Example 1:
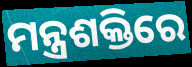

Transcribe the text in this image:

ମନ୍ତ୍ରଶକ୍ତିରେ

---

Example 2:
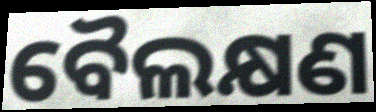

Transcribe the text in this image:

ବୈଲକ୍ଷଣ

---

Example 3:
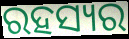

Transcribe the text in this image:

ରହସ୍ୟର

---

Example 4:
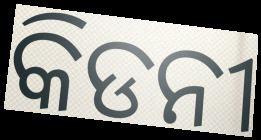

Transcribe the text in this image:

କିଡନୀ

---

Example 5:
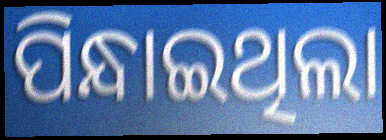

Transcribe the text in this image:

ପିନ୍ଧାଇଥିଲା